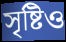
সৃষ্টিও